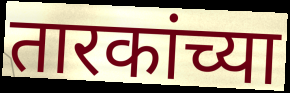
तारकांच्या